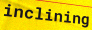
inclining